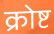
क्रोष्ट